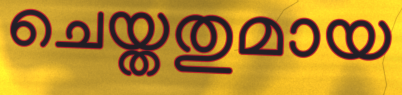
ചെയ്തതുമായ